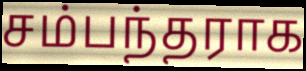
சம்பந்தராக